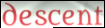
descent